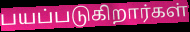
பயப்படுகிறார்கள்